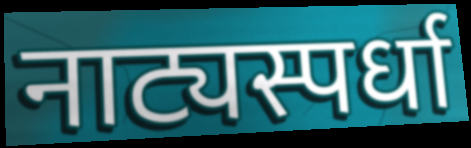
नाट्यस्पर्धा